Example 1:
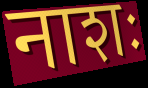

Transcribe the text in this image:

नाशः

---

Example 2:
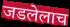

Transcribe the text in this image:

जडलेलाच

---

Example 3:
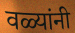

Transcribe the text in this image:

वळ्यांनी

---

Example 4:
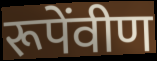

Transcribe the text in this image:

रूपेंवीण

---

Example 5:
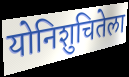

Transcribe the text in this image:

योनिशुचितेला